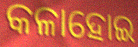
କଳାହୋଇ